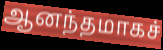
ஆனந்தமாகச்